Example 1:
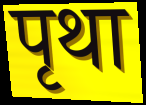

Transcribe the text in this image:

पृथा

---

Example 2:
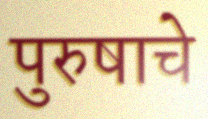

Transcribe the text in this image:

पुरुषाचे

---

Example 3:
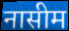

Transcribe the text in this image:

नासीम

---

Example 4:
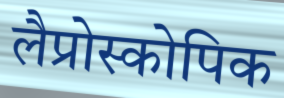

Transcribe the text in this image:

लैप्रोस्कोपिक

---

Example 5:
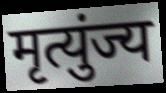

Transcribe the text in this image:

मृत्युंज्य